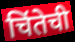
चिंतेची